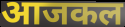
आजकल